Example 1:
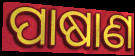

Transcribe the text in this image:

ପାଷାଣ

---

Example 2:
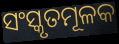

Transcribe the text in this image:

ସଂସ୍କୃତମୂଳକ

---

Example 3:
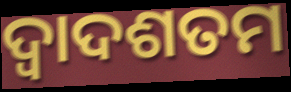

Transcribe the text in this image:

ଦ୍ୱାଦଶତମ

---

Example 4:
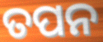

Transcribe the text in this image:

ତପନ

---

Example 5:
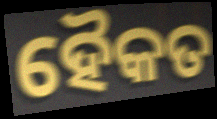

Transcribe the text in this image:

ହୈକତ